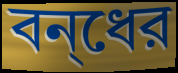
বন্‌ধের